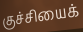
குச்சியைக்